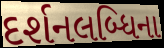
દર્શનલબ્ધિના